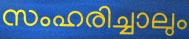
സംഹരിച്ചാലും